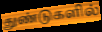
துண்டுகளில்